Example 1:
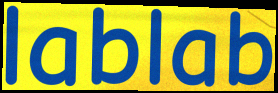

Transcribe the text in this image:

lablab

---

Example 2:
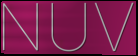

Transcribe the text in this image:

NUV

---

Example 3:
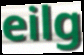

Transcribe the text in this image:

eilg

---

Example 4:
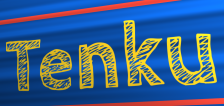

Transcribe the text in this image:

Tenku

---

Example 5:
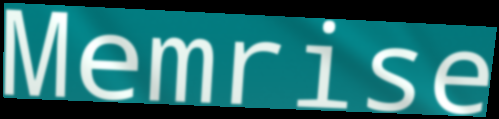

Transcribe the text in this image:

Memrise